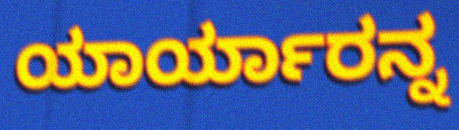
ಯಾರ್ಯಾರನ್ನ